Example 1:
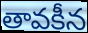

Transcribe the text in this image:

తావకీన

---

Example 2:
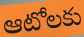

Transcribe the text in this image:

ఆటోలకు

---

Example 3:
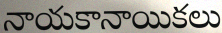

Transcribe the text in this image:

నాయకానాయికలు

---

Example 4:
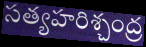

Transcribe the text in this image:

సత్యహరిశ్చంద్ర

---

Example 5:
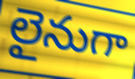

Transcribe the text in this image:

లైనుగా